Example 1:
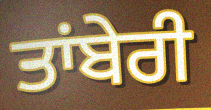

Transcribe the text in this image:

ਤਾਂਬੇਰੀ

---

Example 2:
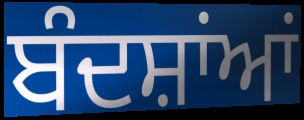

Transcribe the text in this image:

ਬੰਦਸ਼ਾਂਆਂ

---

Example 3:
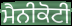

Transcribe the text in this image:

ਮੈਨੀਕੋਟੀ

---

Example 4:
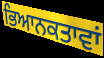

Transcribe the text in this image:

ਭਿਆਨਕਤਾਵਾਂ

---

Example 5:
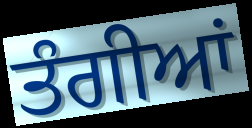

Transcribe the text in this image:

ਤੰਗੀਆਂ